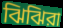
ঝিঝিরা